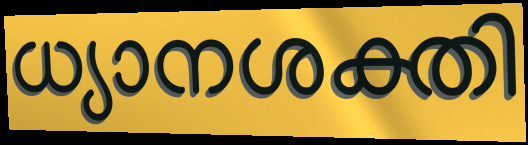
ധ്യാനശക്തി